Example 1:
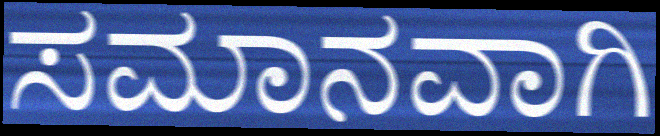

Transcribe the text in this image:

ಸಮಾನವಾಗಿ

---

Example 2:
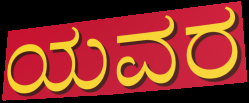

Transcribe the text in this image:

ಯವರ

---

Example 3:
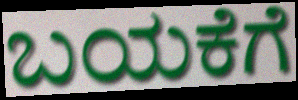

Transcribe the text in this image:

ಬಯಕೆಗೆ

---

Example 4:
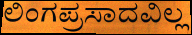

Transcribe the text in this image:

ಲಿಂಗಪ್ರಸಾದವಿಲ್ಲ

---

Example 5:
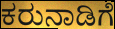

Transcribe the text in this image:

ಕರುನಾಡಿಗೆ